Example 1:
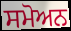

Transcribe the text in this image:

ਸਮੋਅਨ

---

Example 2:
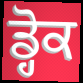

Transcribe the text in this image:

ਡ੍ਹੋਕ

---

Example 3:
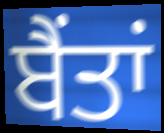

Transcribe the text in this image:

ਬੈਂਤਾਂ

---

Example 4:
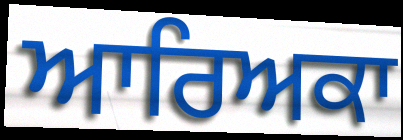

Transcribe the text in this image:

ਆਰਿਅਕਾ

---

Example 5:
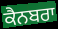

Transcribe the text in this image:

ਕੈਨਬਰਾ